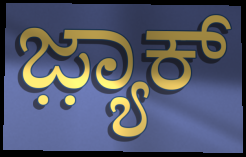
ಜ಼್ಯಾಕ್